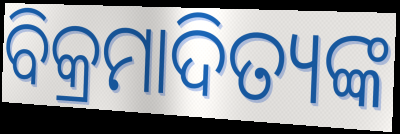
ବିକ୍ରମାଦିତ୍ୟଙ୍କ